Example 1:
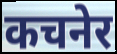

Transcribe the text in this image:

कचनेर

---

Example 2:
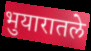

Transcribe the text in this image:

भुयारातले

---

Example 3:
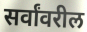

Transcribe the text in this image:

सर्वांवरील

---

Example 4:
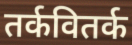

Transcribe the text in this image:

तर्कवितर्क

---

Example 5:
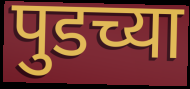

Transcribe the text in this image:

पुडच्या